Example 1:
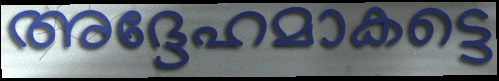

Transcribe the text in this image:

അദ്ദേഹമാകട്ടെ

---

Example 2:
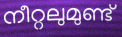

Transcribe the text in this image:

നീറ്റലുമുണ്ട്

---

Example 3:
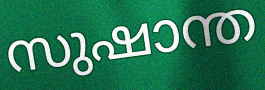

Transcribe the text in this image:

സുഷാന്ത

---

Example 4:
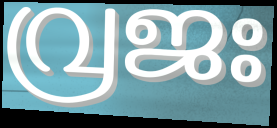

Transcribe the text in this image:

വ്രജഃ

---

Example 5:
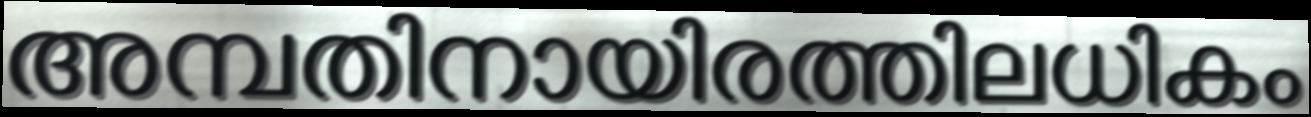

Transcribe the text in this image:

അമ്പതിനായിരത്തിലധികം